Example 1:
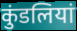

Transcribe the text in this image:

कुंडलियां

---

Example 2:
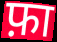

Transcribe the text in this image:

फ़ा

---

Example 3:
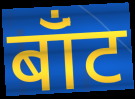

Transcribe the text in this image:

बांँट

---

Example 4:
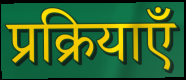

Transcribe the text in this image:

प्रक्रियाएँ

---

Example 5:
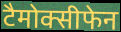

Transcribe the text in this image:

टैमोक्सीफेन